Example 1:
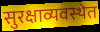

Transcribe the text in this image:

सुरक्षाव्यवस्थेत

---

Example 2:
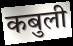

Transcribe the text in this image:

कबुली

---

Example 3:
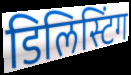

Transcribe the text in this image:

डिलिस्टिंग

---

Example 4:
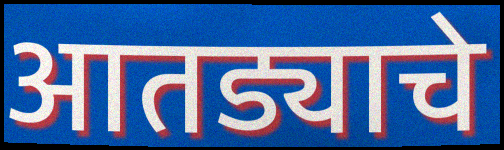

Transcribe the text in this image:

आतड्याचे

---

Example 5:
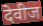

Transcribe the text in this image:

देवीज